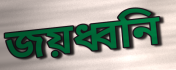
জয়ধ্বনি